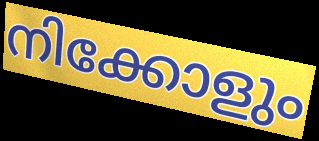
നിക്കോളും